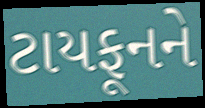
ટાયફૂનને